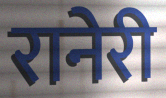
रानेरी